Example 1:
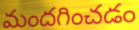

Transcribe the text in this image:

మందగించడం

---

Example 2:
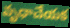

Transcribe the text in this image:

వృధాచేయక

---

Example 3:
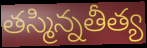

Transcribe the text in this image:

తస్మిన్నతీత్య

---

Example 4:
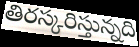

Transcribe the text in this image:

తిరస్కరిస్తున్నది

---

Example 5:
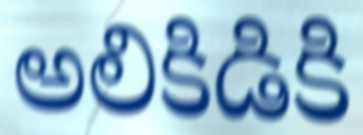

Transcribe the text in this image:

అలికిడికి